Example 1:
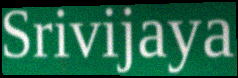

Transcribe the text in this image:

Srivijaya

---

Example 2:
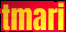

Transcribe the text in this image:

tmari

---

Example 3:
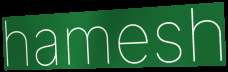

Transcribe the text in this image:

hamesh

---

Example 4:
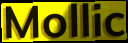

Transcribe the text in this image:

Mollic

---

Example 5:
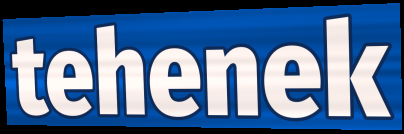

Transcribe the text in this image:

tehenek